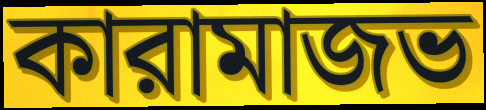
কারামাজভ